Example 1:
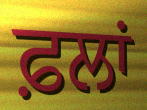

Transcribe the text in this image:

ਫ਼ਲਾਂ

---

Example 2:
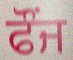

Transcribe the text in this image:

ਫੌਂਜ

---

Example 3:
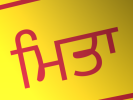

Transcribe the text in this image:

ਮਿਤਾ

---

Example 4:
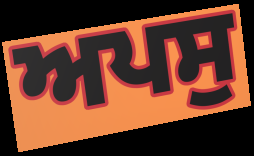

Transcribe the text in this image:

ਅਪਸੁ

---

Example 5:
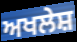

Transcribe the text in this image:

ਅਖਲੇਸ਼